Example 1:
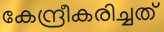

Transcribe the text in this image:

കേന്ദ്രീകരിച്ചത്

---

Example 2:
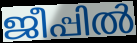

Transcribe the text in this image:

ജീപ്പിൽ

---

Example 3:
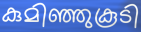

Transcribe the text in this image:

കുമിഞ്ഞുകൂടി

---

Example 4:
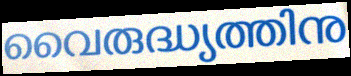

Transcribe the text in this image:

വൈരുദ്ധ്യത്തിനു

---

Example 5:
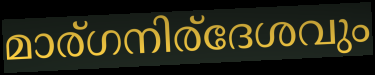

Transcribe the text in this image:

മാര്ഗനിര്ദേശവും